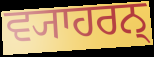
ਵ੍ਯਾਹਰਨ੍